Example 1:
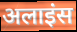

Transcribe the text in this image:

अलाइंस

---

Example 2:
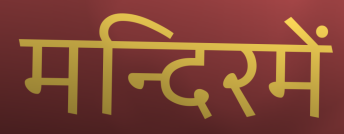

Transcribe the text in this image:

मन्दिरमें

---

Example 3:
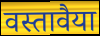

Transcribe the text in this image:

वस्तावैया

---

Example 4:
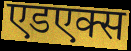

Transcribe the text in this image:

एडएक्स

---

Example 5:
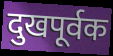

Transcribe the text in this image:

दुखपूर्वक